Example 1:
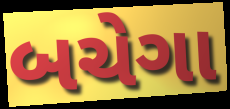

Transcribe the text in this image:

બચેગા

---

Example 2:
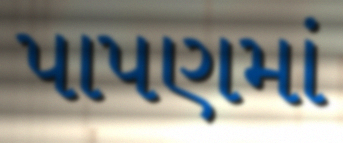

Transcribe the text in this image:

પાપણમાં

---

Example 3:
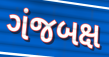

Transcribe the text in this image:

ગંજબક્ષ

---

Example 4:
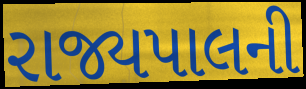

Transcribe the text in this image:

રાજ્યપાલની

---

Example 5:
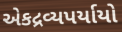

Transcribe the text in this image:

એકદ્રવ્યપર્યાયો